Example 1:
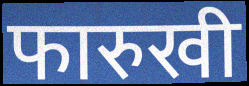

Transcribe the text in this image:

फारुखी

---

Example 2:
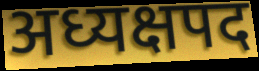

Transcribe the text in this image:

अध्यक्षपद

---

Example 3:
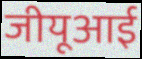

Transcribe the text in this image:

जीयूआई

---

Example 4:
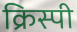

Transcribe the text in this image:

क्रिस्पी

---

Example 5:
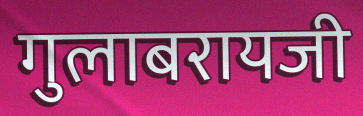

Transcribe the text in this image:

गुलाबरायजी